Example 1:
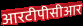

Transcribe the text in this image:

आरटीपीसीआर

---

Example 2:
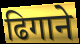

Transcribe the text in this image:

ढिगाने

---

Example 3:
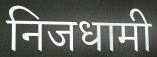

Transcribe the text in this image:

निजधामी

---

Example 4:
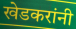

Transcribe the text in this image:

खेडकरांनी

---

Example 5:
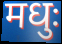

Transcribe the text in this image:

मधुः